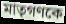
মাতৃগণকে